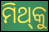
ମିଥ୍‍କୁ